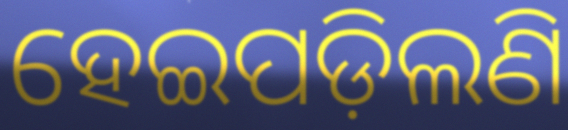
ହେଇପଡ଼ିଲଣି